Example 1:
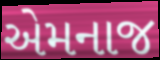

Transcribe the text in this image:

એમનાજ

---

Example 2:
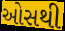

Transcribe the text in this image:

ઓસથી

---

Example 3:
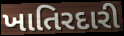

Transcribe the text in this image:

ખાતિરદારી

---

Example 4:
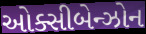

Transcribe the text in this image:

ઓક્સીબેન્ઝોન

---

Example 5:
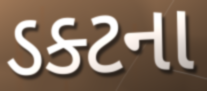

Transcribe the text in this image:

ડક્ટના